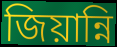
জিয়ান্নি